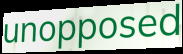
unopposed